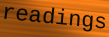
readings